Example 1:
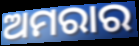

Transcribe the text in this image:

ଅମରାର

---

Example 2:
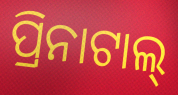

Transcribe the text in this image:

ପ୍ରିନାଟାଲ୍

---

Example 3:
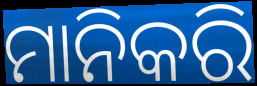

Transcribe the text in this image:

ମାନିକରି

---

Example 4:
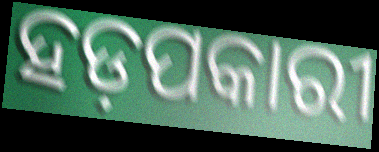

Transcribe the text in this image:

ହଡ଼ପକାରୀ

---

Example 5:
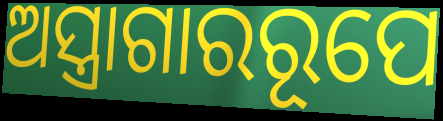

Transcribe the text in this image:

ଅସ୍ତ୍ରାଗାରରୂପେ